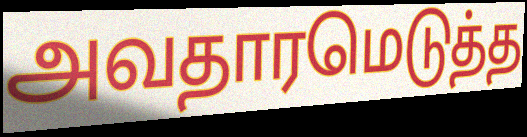
அவதாரமெடுத்த